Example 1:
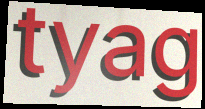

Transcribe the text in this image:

tyag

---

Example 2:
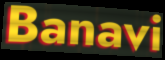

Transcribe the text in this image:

Banavi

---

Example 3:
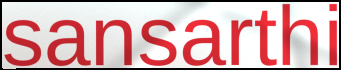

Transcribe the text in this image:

sansarthi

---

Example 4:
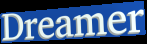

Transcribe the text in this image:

Dreamer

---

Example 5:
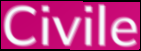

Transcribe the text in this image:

Civile